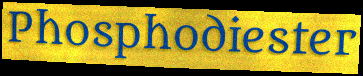
Phosphodiester